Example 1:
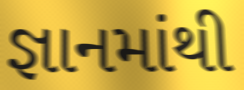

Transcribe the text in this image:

જ્ઞાનમાંથી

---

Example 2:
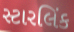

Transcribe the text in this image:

સ્ટારલિંક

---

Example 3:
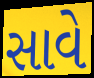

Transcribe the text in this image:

સાવે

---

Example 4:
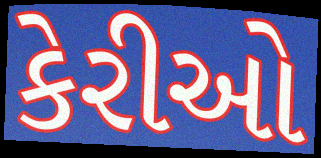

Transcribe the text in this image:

કેરીઓ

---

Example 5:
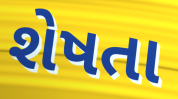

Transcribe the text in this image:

શેષતા